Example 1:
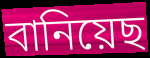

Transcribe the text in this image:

বানিয়েছ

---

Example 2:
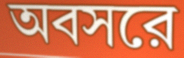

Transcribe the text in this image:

অবসরে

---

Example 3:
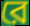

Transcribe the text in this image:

রে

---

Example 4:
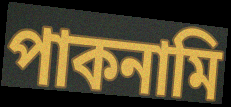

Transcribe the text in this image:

পাকনামি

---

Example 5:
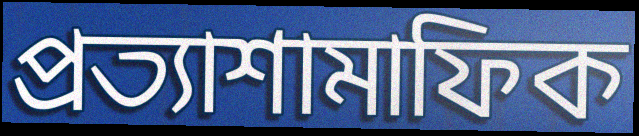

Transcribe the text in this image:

প্রত্যাশামাফিক